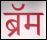
ब्रॅम